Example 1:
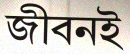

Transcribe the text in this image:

জীবনই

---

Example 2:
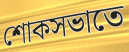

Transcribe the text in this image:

শোকসভাতে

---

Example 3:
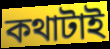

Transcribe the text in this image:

কথাটাই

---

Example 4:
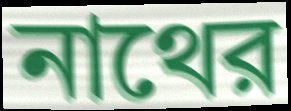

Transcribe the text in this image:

নাথের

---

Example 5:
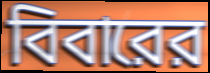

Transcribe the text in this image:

বিবারের